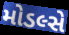
મોડલ્સે